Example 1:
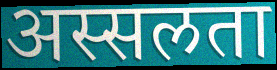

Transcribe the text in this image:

अस्सलता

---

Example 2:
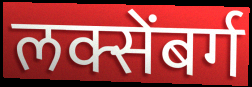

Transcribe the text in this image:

लक्सेंबर्ग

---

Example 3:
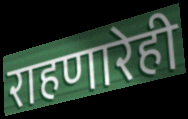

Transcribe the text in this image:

राहणारेही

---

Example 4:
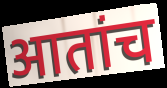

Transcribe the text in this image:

आतांच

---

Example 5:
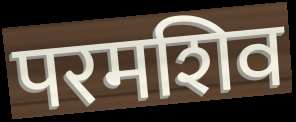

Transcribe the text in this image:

परमशिव